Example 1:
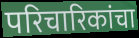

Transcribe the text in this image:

परिचारिकांचा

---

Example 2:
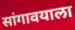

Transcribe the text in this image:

सांगावयाला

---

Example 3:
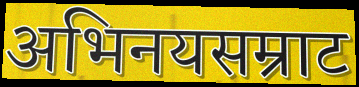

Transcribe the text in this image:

अभिनयसम्राट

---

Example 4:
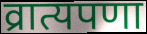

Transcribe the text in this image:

व्रात्यपणा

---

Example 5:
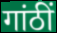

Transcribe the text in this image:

गांठीं